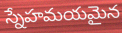
స్నేహమయమైన